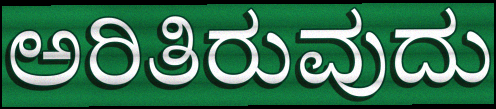
ಅರಿತಿರುವುದು